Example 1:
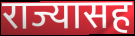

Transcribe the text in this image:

राज्यासह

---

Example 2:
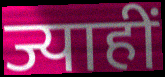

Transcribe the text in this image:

ज्याहीं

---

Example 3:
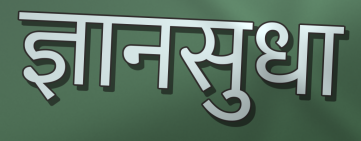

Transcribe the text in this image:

ज्ञानसुधा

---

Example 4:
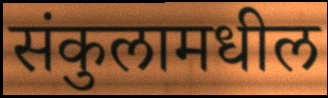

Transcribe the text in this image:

संकुलामधील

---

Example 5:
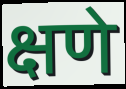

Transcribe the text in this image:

क्षणे